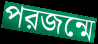
পরজন্মে